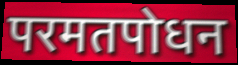
परमतपोधन